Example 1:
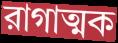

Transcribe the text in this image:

রাগাত্মক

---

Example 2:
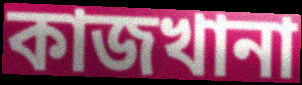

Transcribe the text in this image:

কাজখানা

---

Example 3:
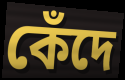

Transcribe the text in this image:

কেঁদে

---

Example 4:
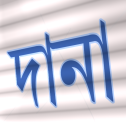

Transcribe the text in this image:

দানা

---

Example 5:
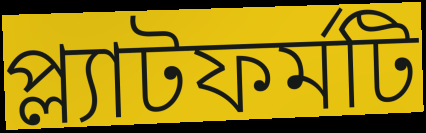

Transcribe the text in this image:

প্ল্যাটফর্মটি